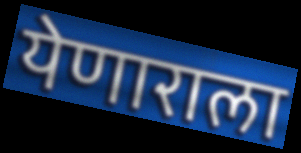
येणाराला